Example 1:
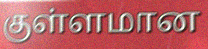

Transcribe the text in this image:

குள்ளமான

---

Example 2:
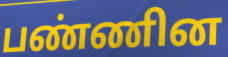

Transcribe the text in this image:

பண்ணின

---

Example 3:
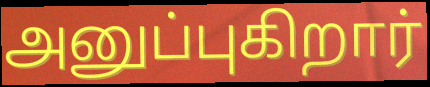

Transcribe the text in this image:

அனுப்புகிறார்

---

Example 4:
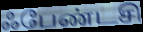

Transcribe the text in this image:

ஃபேண்டசி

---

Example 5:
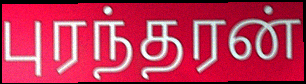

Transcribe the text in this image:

புரந்தரன்